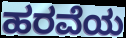
ಹರವೆಯ